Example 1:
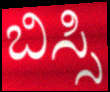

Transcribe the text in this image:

ಬಿಸ್ಸಿ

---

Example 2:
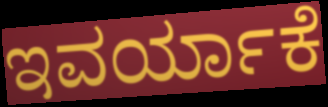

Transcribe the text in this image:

ಇವರ್ಯಾಕೆ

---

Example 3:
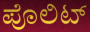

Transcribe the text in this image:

ಪೊಲಿಟ್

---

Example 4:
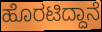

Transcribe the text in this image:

ಹೊರಟಿದ್ದಾನೆ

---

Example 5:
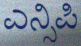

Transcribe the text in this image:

ಎನ್ಸಿಪಿ